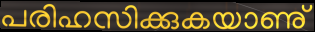
പരിഹസിക്കുകയാണു്